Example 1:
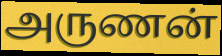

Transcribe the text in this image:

அருணன்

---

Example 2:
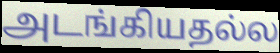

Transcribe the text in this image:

அடங்கியதல்ல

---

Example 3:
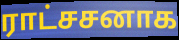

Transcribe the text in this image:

ராட்சசனாக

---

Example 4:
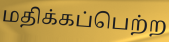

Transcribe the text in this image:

மதிக்கப்பெற்ற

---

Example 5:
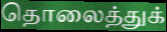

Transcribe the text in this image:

தொலைத்துக்